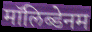
मॉलिब्डेनम